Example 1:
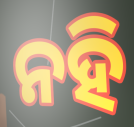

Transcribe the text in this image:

ନହି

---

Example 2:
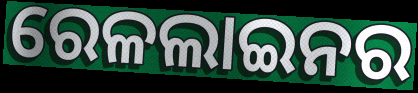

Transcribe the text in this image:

ରେଳଲାଇନର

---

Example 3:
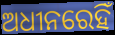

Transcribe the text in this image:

ଅଧୀନରେହିଁ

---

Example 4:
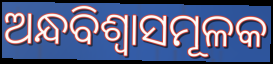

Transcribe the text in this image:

ଅନ୍ଧବିଶ୍ୱାସମୂଳକ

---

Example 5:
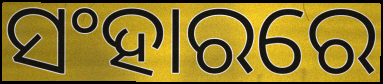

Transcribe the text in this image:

ସଂହାରରେ